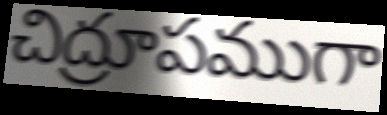
చిద్రూపముగా